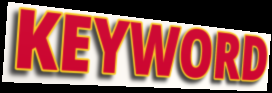
KEYWORD